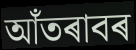
আঁতৰাবৰ